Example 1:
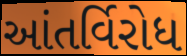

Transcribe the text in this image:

આંતર્વિરોધ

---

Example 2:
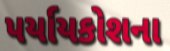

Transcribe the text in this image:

પર્યાયકોશના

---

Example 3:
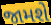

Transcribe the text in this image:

જામશે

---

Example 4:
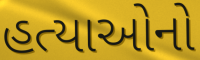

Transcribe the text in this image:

હત્યાઓનો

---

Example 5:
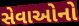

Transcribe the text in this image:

સેવાઓનો